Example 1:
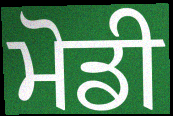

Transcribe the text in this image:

ਮੋਡੀ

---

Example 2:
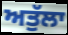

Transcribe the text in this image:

ਅਤੁੱਲਾ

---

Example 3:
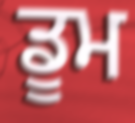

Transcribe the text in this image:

ਡੂਮ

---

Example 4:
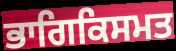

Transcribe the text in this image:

ਭਾਗਿਕਿਸਮਤ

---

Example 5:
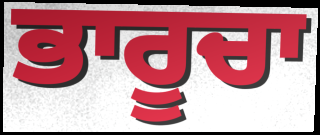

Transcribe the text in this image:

ਭਾਰੂਚਾ